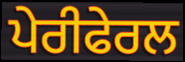
ਪੇਰੀਫੇਰਲ